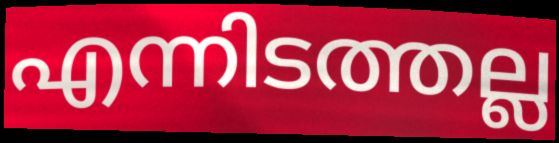
എന്നിടത്തല്ല